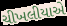
ચીખલીયાએ